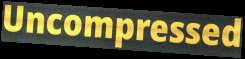
Uncompressed